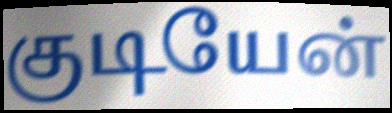
குடியேன்